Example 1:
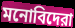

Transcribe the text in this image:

মনোবিদেরা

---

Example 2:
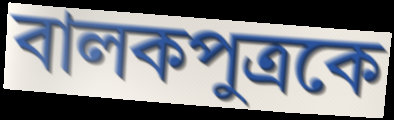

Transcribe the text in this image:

বালকপুত্রকে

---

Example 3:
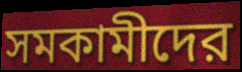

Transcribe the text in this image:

সমকামীদের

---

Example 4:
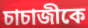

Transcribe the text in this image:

চাচাজীকে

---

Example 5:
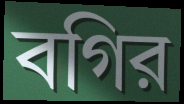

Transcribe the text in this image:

বগির